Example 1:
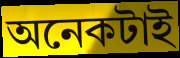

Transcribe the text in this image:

অনেকটাই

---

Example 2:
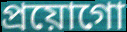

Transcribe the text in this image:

প্ৰয়োগো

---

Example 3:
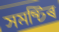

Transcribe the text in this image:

সমষ্টিৰ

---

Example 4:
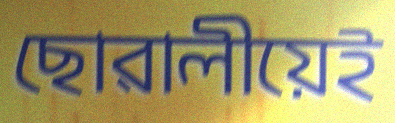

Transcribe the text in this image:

ছোৱালীয়েই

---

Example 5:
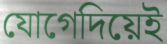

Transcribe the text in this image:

যোগেদিয়েই